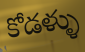
కోడళ్ళు